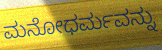
ಮನೋಧರ್ಮವನ್ನು